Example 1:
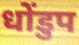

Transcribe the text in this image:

धोंडुप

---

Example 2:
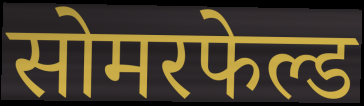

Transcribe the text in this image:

सोमरफेल्ड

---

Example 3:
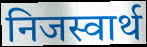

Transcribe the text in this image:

निजस्वार्थ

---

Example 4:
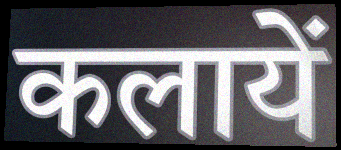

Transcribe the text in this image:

कलायें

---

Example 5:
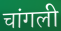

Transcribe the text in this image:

चांगली